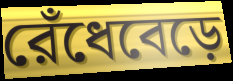
রেঁধেবেড়ে